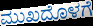
ಮುಖದೊಳಗೆ